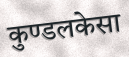
कुण्डलकेसा